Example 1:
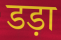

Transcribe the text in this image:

डड़ा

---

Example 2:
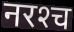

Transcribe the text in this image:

नरश्च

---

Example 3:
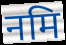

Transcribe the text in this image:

नमि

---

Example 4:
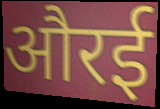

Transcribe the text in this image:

औरई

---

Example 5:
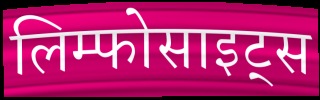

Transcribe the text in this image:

लिम्फोसाइट्स